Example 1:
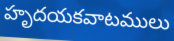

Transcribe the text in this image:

హృదయకవాటములు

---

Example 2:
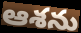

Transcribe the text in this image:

ఆశను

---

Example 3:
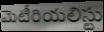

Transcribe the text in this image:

మెటీరియలిస్టు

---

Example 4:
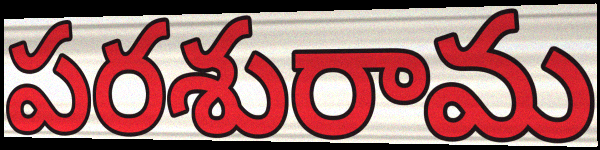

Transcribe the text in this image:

పరశురామ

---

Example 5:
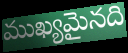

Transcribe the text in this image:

ముఖ్యమైనది